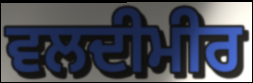
ਵਲਦੀਮੀਰ